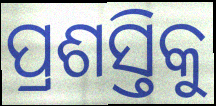
ପ୍ରଶସ୍ତିକୁ